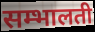
सम्भालती